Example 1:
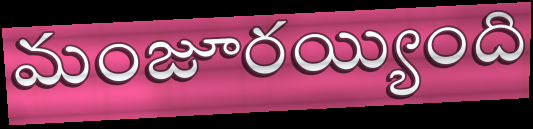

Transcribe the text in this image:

మంజూరయ్యింది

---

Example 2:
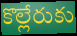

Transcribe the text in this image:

కొల్లేరుకు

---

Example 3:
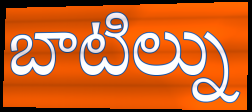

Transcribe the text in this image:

బాటిల్ను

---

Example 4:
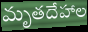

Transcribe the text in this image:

మృతదేహాల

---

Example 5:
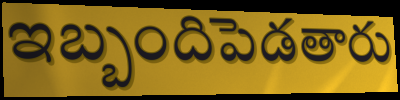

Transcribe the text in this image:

ఇబ్బందిపెడతారు